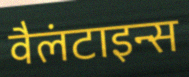
वैलंटाइन्स